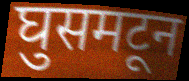
घुसमटून